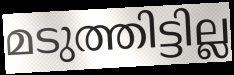
മടുത്തിട്ടില്ല